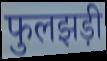
फुलझड़ी